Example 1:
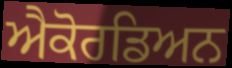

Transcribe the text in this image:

ਐਕੋਰਡਿਅਨ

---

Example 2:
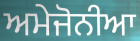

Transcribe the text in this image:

ਅਮੇਜੋਨੀਆ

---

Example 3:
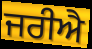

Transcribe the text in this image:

ਜਰੀਐ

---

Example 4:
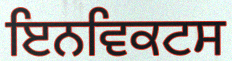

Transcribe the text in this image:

ਇਨਵਿਕਟਸ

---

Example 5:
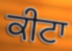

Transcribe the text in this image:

ਕੀਟਾ